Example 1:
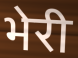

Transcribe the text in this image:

भेरी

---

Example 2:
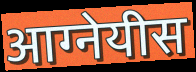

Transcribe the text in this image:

आग्नेयीस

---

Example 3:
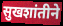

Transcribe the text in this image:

सुखशांतीने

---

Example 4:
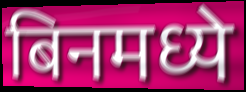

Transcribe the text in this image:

बिनमध्ये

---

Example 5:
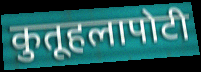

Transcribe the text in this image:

कुतूहलापोटी